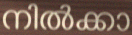
നിൽക്കാ